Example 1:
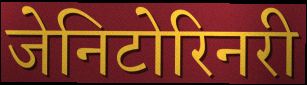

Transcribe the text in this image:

जेनिटोरिनरी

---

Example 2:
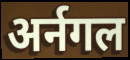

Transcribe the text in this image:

अर्नगल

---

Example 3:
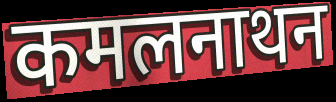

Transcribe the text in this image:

कमलनाथन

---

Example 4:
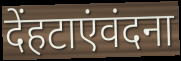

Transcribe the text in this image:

देंहटाएंवंदना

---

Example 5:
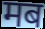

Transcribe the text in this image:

मब